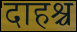
दाहश्च